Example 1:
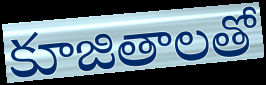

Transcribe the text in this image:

కూజితాలతో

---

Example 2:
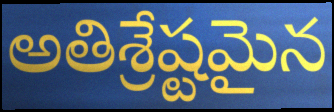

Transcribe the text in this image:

అతిశ్రేష్టమైన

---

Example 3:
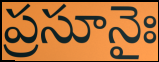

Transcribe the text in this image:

ప్రసూనైః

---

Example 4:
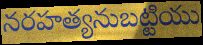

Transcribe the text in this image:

నరహత్యనుబట్టియు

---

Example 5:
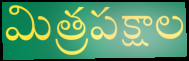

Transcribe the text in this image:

మిత్రపక్షాల